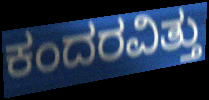
ಕಂದರವಿತ್ತು